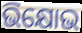
ଭିକ୍ଷୋଭ